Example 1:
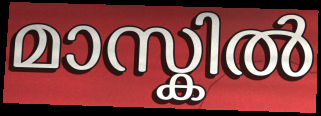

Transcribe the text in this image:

മാസ്കിൽ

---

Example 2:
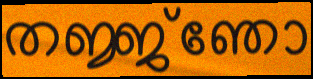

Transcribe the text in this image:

തജ്ജ്ഞോ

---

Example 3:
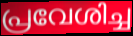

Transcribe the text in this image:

പ്രവേശിച്ച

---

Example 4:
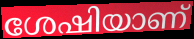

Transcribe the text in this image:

ശേഷിയാണ്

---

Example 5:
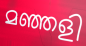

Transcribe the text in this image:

മഞ്ഞളി